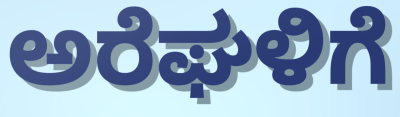
ಅರೆಘಳಿಗೆ